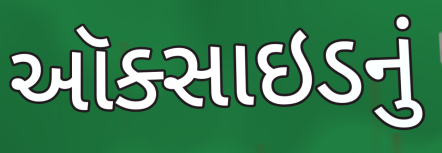
ઑક્સાઇડનું